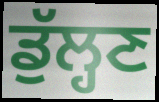
ਡੁੱਲ੍ਹਣ